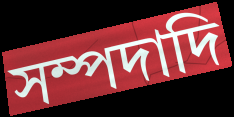
সম্পদাদি